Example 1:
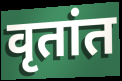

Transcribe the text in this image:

वृतांत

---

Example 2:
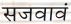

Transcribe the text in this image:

सजवावं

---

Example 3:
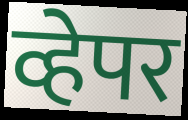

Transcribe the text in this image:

व्हेपर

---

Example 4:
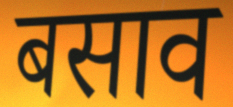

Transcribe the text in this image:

बसाव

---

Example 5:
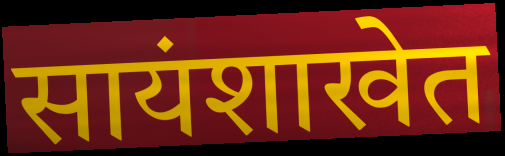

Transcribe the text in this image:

सायंशाखेत